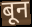
बून